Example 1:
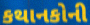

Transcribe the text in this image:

કથાનકોની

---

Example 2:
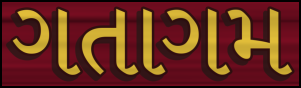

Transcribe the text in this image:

ગતાગમ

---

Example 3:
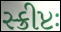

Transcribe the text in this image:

સ્ક્રીપ્ટઃ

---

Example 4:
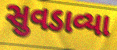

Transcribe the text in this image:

સુવડાવ્યા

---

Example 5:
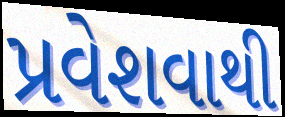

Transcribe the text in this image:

પ્રવેશવાથી